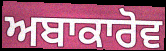
ਅਬਾਕਾਰੋਵ